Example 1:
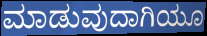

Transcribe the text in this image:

ಮಾಡುವುದಾಗಿಯೂ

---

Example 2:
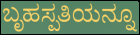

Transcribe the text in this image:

ಬೃಹಸ್ಪತಿಯನ್ನೂ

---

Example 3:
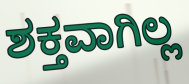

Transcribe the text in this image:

ಶಕ್ತವಾಗಿಲ್ಲ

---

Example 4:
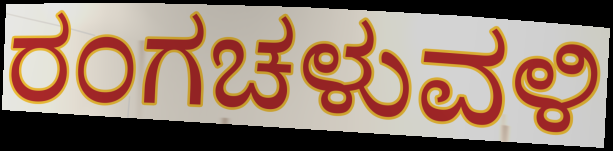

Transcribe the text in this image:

ರಂಗಚಳುವಳಿ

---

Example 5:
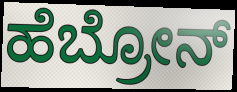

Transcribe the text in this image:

ಹೆಬ್ರೋನ್